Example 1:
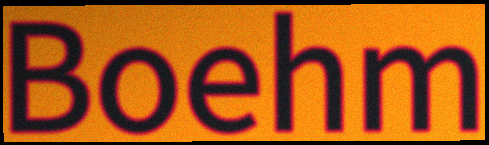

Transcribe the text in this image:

Boehm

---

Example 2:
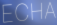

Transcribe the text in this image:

ECHA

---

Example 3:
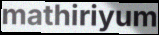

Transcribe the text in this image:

mathiriyum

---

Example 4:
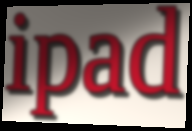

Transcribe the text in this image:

ipad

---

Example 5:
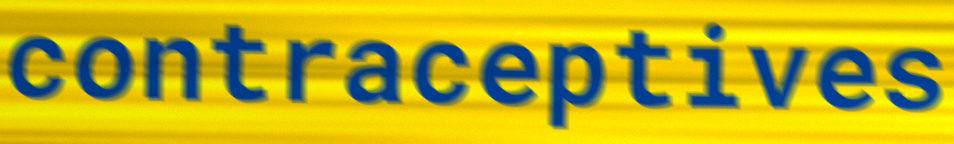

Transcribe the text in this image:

contraceptives